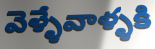
వెళ్ళేవాళ్ళకి